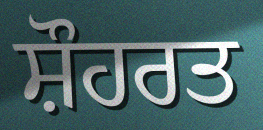
ਸ਼ੌਹਰਤ